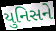
યુનિસને